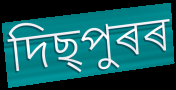
দিছ্পুৰৰ